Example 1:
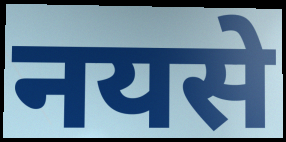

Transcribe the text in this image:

नयसे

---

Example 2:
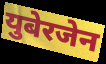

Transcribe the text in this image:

युबेरजेन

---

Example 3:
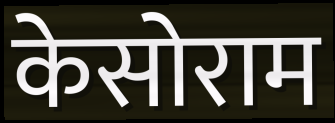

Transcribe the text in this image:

केसोराम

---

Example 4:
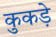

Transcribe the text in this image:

कुकड़े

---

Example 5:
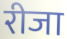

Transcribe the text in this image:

रीजा